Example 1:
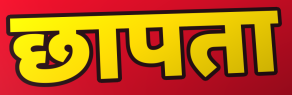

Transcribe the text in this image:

छापता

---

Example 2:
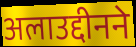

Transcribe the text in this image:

अलाउद्दीनने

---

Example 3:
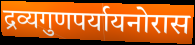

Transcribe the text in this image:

द्रव्यगुणपर्यायनोरास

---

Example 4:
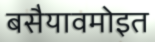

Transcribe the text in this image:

बसैयावमोइत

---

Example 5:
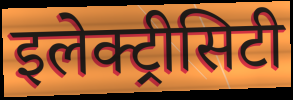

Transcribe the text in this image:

इलेक्ट्रीसिटी